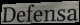
Defensa